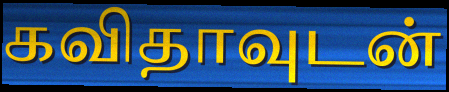
கவிதாவுடன்